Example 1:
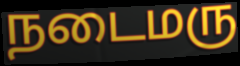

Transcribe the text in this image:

நடைமரு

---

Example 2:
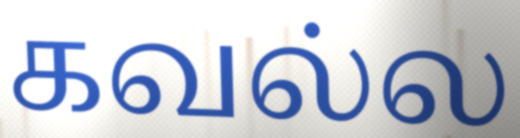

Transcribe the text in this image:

கவல்ல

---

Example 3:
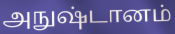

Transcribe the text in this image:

அநுஷ்டானம்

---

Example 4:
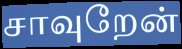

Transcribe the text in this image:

சாவுறேன்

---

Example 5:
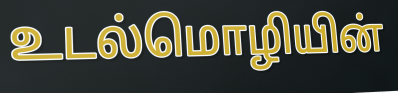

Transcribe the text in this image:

உடல்மொழியின்